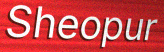
Sheopur